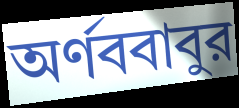
অর্ণববাবুর